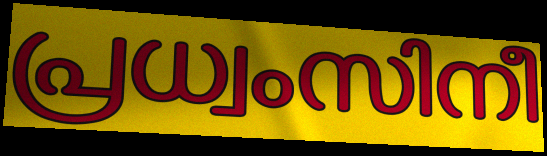
പ്രധ്വംസിനീ